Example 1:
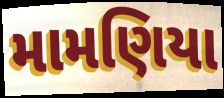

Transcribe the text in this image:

મામણિયા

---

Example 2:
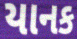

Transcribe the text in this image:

યાનક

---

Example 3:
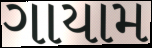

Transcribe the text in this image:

ગાયામ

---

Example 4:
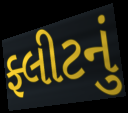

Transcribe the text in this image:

ફ્લીટનું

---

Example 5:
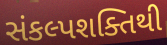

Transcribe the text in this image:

સંકલ્પશક્તિથી